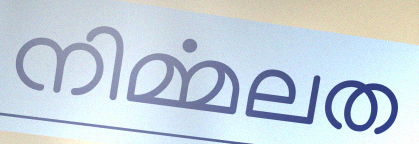
നിൎമ്മലത